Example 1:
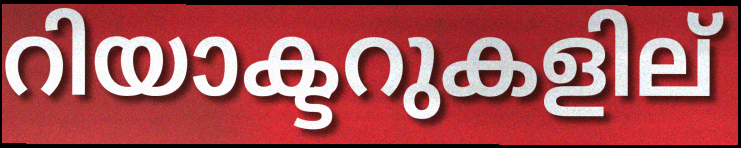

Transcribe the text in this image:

റിയാക്ടറുകളില്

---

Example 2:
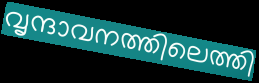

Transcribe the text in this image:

വൃന്ദാവനത്തിലെത്തി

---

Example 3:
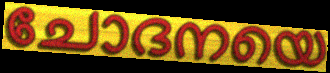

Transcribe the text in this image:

ചോദനയെ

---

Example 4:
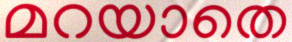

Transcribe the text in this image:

മറയാതെ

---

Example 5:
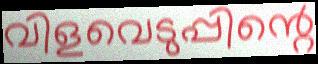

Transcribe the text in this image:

വിളവെടുപ്പിന്റെ